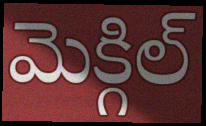
మెక్గిల్